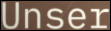
Unser